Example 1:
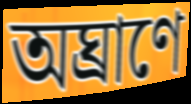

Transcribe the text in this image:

অঘ্রাণে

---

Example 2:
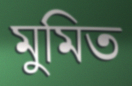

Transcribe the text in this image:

মুমিত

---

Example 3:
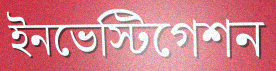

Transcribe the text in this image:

ইনভেস্টিগেশন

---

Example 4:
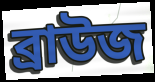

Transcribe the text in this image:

ব্রাউজ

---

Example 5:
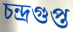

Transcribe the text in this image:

চন্দ্রগুপ্ত